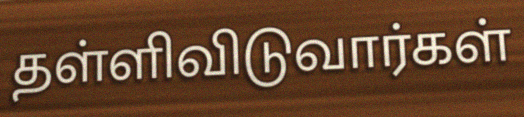
தள்ளிவிடுவார்கள்